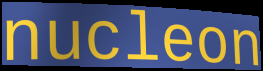
nucleon